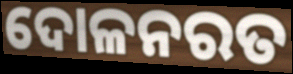
ଦୋଳନରତ